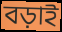
বড়াই